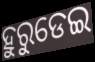
ହୁରୁଡେଇ